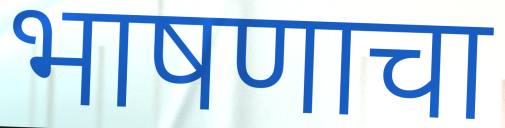
भाषणाचा